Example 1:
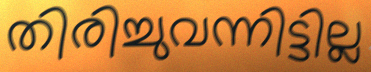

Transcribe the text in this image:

തിരിച്ചുവന്നിട്ടില്ല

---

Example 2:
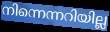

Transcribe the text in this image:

നിന്നെന്നറിയില്ല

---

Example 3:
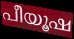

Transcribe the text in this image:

പീയൂഷ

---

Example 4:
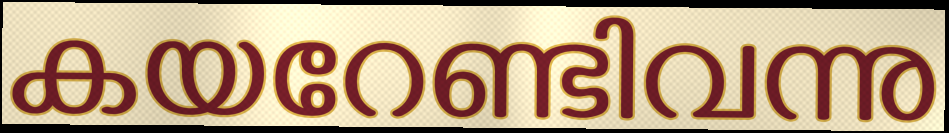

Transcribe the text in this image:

കയറേണ്ടിവന്നു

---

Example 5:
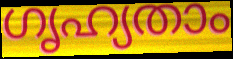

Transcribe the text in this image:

ഗൃഹ്യതാം